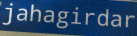
jahagirdar